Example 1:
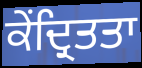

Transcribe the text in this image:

ਕੇਂਦ੍ਰਿਤਤਾ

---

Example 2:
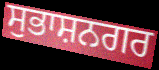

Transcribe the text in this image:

ਸੁਭਾਸ਼ਨਗਰ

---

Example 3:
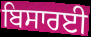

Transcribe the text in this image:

ਬਿਸਾਰਈ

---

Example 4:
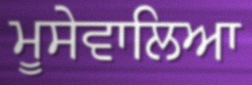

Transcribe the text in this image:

ਮੂਸੇਵਾਲਿਆ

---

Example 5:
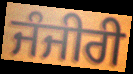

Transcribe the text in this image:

ਜੰਜੀਰੀ